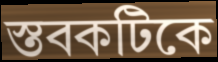
স্তবকটিকে